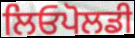
ਲਿਓਪੋਲਡੀ